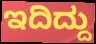
ಇದಿದ್ದು